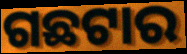
ଗଛଟାର